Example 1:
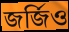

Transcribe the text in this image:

জর্জিও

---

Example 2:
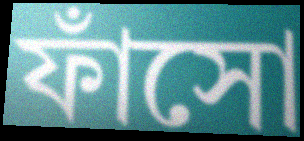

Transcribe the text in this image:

ফাঁসো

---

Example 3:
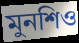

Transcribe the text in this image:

মুনশিও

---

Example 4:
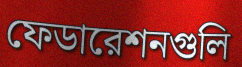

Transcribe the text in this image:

ফেডারেশনগুলি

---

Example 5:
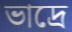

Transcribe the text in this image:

ভাদ্রে